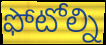
ఫోటోల్ని